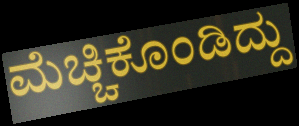
ಮೆಚ್ಚಿಕೊಂಡಿದ್ದು